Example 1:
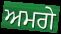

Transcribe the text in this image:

ਅਮਗੇ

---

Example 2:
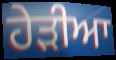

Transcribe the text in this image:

ਹੇੜੀਆ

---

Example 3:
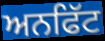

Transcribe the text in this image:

ਅਨਫਿੱਟ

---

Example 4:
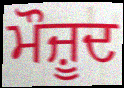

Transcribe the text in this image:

ਮੌਜ਼ੂਦ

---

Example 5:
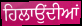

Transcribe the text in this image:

ਹਿਲਾਉਂਦੀਆਂ